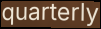
quarterly